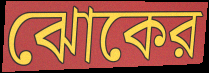
ঝোকের